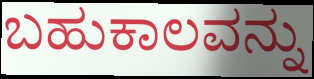
ಬಹುಕಾಲವನ್ನು